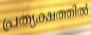
പ്രത്യക്ഷത്തിൽ